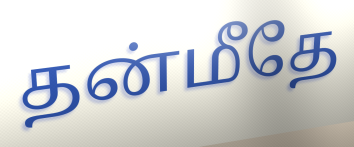
தன்மீதே